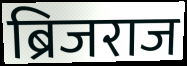
ब्रिजराज